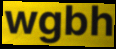
wgbh